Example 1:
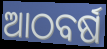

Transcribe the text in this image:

ଆଠବର୍ଷ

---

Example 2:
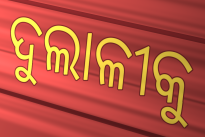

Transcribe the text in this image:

ଦୁଲାଳୀକୁ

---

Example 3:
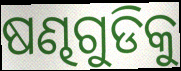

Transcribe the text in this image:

ଷଣ୍ଢଗୁଡିକୁ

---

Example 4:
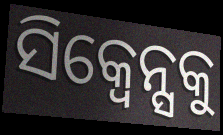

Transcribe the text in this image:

ସିକ୍ୱେନ୍ସକୁ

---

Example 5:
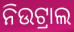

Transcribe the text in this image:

ନିଉଟ୍ରାଲ